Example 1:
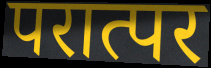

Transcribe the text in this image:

परात्पर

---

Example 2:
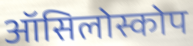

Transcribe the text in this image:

ऑसिलोस्कोप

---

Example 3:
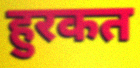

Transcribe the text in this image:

हुरकत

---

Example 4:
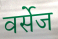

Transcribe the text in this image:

वर्सेज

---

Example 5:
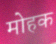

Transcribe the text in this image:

मोहक